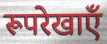
रूपरेखाएँ